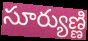
సూర్యుణ్ణి